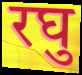
रघु